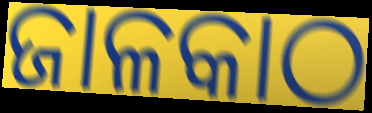
ଜାଳକାଠ